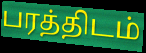
பரத்திடம்